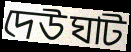
দেউঘাট